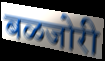
बळजोरी